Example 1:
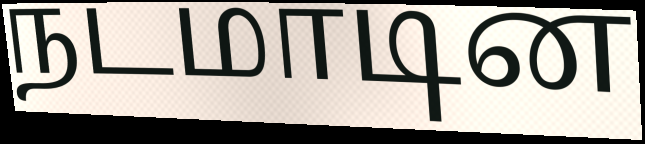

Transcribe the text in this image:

நடமாடின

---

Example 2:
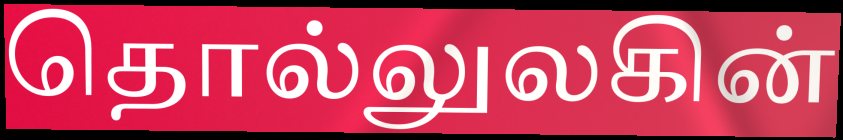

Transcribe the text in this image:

தொல்லுலகின்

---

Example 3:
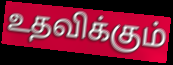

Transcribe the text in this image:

உதவிக்கும்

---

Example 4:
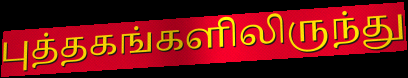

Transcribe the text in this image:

புத்தகங்களிலிருந்து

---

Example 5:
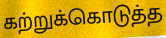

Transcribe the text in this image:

கற்றுக்கொடுத்த